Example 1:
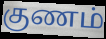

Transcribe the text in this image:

குணம்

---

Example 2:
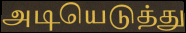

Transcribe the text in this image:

அடியெடுத்து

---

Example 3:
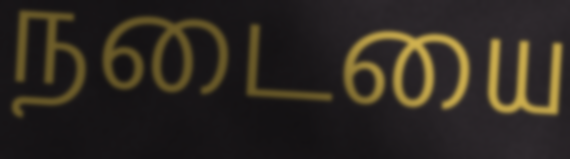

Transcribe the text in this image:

நடையை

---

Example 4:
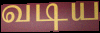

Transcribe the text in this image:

வடிய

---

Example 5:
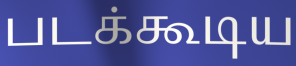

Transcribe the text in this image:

படக்கூடிய